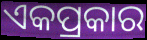
ଏକପ୍ରକାର